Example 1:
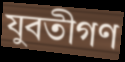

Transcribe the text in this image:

যুবতীগণ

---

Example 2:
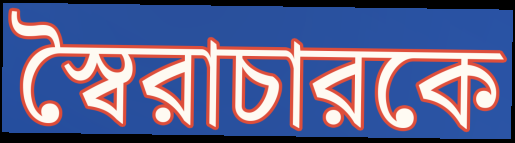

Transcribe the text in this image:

স্বৈরাচারকে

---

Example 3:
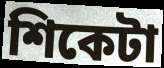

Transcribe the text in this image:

শিকেটা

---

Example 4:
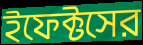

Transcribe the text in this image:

ইফেক্টসের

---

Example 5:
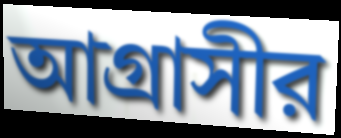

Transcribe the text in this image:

আগ্রাসীর